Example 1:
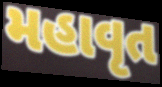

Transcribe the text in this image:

મહાવૃત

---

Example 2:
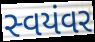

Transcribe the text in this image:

સ્વયંવર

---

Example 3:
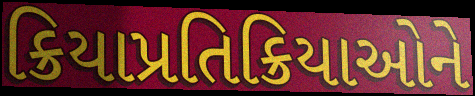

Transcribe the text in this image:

ક્રિયાપ્રતિક્રિયાઓને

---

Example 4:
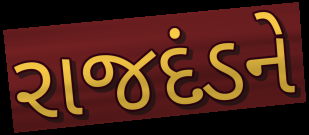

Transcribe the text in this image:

રાજદંડને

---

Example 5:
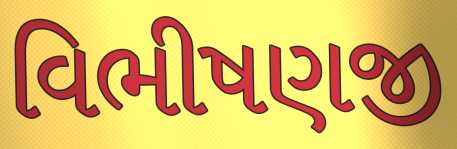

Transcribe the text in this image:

વિભીષણજી